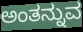
ಅಂತನ್ನುವ